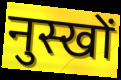
नुस्खों